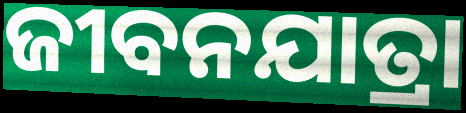
ଜୀବନଯାତ୍ରା